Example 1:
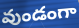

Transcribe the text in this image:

వుండంగా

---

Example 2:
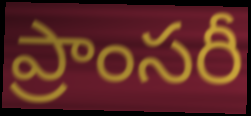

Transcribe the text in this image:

ప్రాంసరీ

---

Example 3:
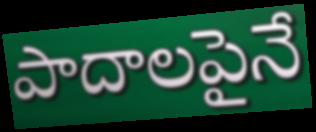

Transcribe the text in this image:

పాదాలపైనే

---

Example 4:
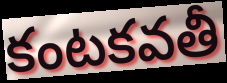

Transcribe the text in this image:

కంటకవతీ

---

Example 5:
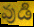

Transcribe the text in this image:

వుడి